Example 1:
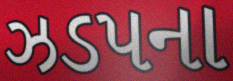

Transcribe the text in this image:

ઝડપના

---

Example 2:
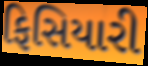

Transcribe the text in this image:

ફિસિયારી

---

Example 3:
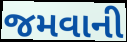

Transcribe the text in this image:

જમવાની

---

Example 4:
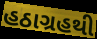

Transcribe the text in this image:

હઠાગ્રહથી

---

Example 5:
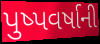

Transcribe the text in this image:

પુષ્પવર્ષાની